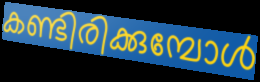
കണ്ടിരിക്കുമ്പോൾ